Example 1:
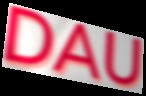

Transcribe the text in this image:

DAU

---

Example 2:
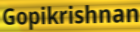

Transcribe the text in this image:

Gopikrishnan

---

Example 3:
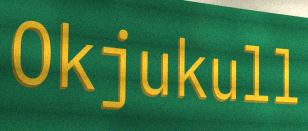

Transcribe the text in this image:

Okjukull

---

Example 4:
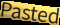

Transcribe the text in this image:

Pasted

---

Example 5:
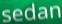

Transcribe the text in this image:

sedan